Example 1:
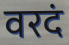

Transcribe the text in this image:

वरदं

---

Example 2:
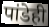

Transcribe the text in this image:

पांडेही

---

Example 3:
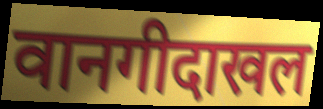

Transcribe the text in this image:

वानगीदाखल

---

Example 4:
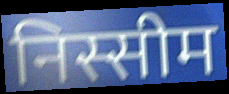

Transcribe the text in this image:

निस्सीम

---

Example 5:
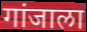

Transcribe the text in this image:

गांजाला